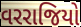
વરરાજિયો